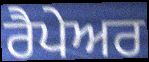
ਰੈਪੇਅਰ